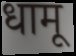
धामू